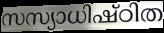
സസ്യാധിഷ്ഠിത